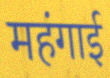
महंगाई